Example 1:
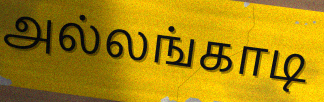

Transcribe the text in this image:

அல்லங்காடி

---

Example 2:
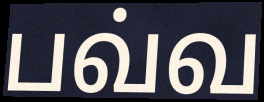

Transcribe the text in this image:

பவ்வ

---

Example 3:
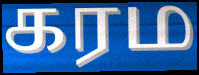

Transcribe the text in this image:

கரம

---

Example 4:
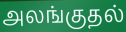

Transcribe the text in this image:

அலங்குதல்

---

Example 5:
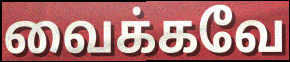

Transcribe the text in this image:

வைக்கவே